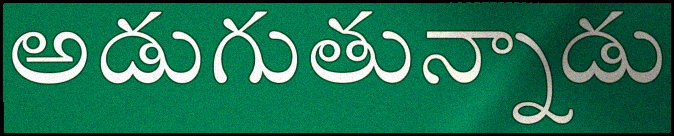
అడుగుతున్నాడు